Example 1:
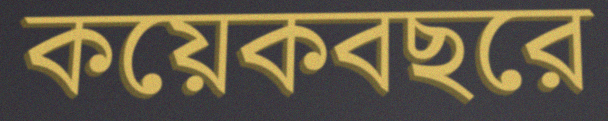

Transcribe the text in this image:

কয়েকবছরে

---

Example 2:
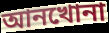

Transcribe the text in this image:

আনখোনা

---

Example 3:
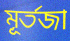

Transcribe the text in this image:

মূর্তজা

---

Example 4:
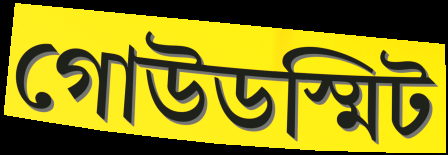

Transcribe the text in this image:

গোউডস্মিট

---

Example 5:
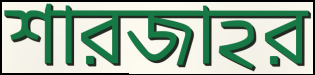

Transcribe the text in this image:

শারজাহর